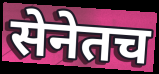
सेनेतच